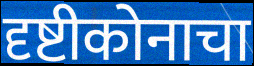
दृष्टीकोनाचा